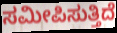
ಸಮೀಪಿಸುತ್ತಿದೆ